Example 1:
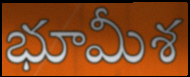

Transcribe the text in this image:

భూమీశ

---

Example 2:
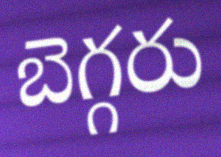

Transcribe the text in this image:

బెగ్గరు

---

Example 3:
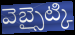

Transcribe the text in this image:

వెబ్సైట్కి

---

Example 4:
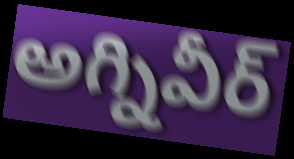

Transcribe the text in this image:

అగ్నివీర్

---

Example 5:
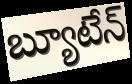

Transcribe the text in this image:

బ్యూటేన్